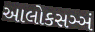
આલોકસઞ્ઞં